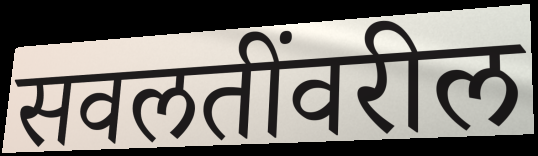
सवलतींवरील